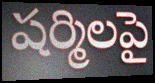
షర్మిలపై